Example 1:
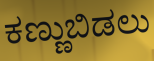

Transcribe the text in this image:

ಕಣ್ಣುಬಿಡಲು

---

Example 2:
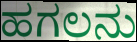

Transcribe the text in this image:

ಹಗಲನು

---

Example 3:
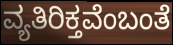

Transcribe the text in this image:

ವ್ಯತಿರಿಕ್ತವೆಂಬಂತೆ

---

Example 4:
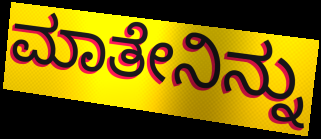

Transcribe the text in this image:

ಮಾತೇನಿನ್ನು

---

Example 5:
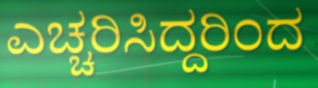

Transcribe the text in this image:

ಎಚ್ಚರಿಸಿದ್ದರಿಂದ